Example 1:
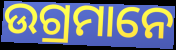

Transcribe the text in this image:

ଉଗ୍ରମାନେ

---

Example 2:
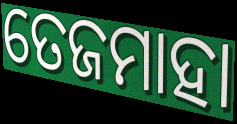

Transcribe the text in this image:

ତେଜମାହା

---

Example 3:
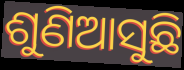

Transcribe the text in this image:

ଶୁଣିଆସୁଛି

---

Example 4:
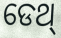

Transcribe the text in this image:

ଡେଥ୍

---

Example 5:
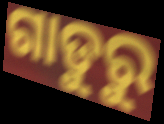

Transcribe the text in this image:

ଗାଡୁରୁ